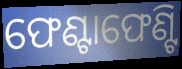
ଫେଣ୍ଟାଫେଣ୍ଟି